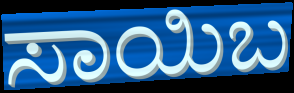
ಸಾಯಿಬ